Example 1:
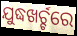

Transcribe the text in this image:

ଯୁଦ୍ଧଖର୍ଚ୍ଚରେ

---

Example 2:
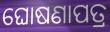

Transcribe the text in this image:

ଘୋଷଣାପତ୍ର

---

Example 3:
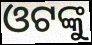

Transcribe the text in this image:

ଓଟଙ୍କୁ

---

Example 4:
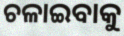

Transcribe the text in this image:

ଚଳାଇବାକୁ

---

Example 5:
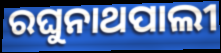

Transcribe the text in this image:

ରଘୁନାଥପାଲୀ